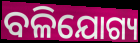
ବଳିଯୋଗ୍ୟ